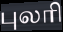
புலரி